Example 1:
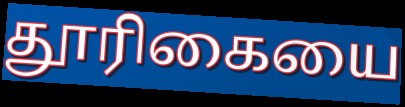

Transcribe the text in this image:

தூரிகையை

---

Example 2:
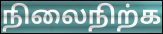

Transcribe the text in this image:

நிலைநிற்க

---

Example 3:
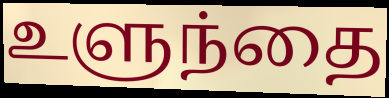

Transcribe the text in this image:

உளுந்தை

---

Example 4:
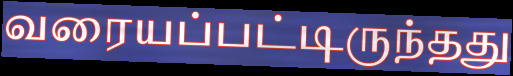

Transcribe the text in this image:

வரையப்பட்டிருந்தது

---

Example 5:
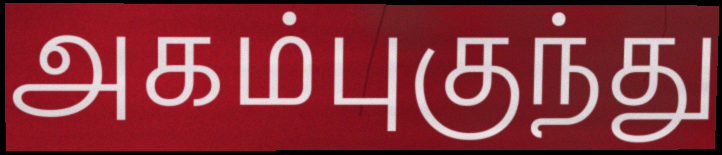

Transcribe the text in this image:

அகம்புகுந்து